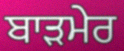
ਬਾੜਮੇਰ